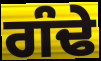
ਗੰਢੇ